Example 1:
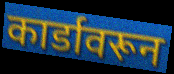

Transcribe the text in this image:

कार्डावरून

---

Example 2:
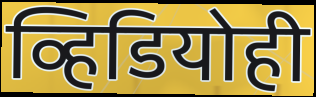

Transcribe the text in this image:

व्हिडियोही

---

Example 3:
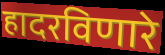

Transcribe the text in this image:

हादरविणारे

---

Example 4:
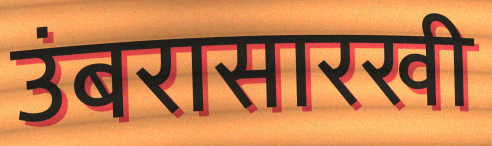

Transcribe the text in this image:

उंबरासारखी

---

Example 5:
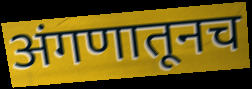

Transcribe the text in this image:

अंगणातूनच